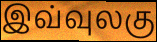
இவ்வுலகு